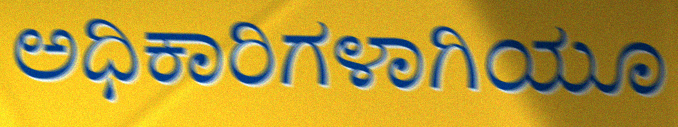
ಅಧಿಕಾರಿಗಳಾಗಿಯೂ